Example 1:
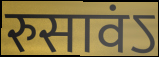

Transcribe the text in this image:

रुसावंऽ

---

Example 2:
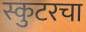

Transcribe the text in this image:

स्कुटरचा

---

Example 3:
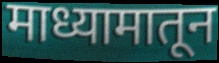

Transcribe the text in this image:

माध्यामातून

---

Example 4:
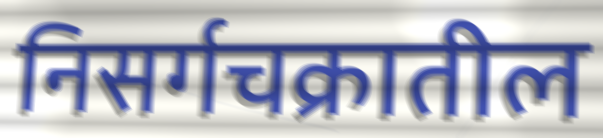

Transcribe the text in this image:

निसर्गचक्रातील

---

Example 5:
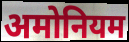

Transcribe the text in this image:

अमोनियम